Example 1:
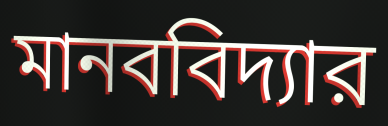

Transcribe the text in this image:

মানববিদ্যার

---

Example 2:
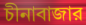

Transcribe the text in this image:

চীনাবাজার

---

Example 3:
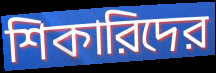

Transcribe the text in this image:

শিকারিদের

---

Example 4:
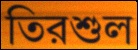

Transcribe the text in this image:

তিরশুল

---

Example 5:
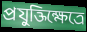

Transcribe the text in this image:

প্রযুক্তিক্ষেত্রে